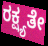
ರಕ್ಷ್ಯತೇ